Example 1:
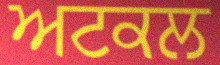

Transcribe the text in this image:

ਅਟਕਲ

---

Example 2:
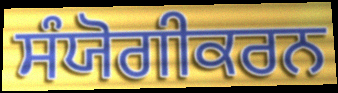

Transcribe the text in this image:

ਸੰਯੋਗੀਕਰਨ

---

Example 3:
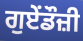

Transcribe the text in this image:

ਗੁਏਂਡੌਜ਼ੀ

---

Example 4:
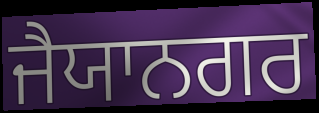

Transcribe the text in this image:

ਜੈਯਾਨਗਰ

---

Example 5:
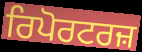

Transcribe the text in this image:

ਰਿਪੋਰਟਰਜ਼